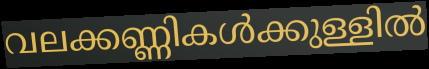
വലക്കണ്ണികൾക്കുള്ളിൽ